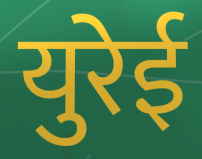
युरेई